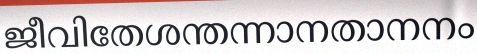
ജീവിതേശന്തന്നാനതാനനം